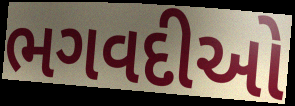
ભગવદીઓ